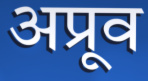
अप्रूव